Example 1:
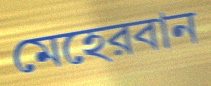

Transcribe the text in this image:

মেহেরবান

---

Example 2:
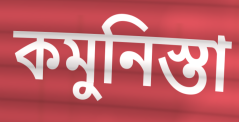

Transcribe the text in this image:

কমুনিস্তা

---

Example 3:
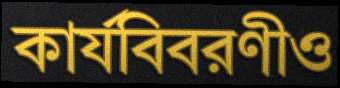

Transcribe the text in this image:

কার্যবিবরণীও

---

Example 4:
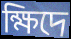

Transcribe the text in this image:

ক্ষিদে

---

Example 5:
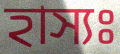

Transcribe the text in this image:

হাস্যঃ